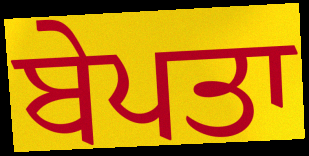
ਬੇਪਤਾ